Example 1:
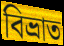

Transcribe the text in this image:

বিভ্ৰাত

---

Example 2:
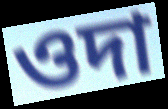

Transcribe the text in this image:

ওদা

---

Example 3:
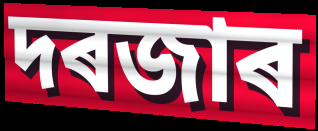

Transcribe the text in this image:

দৰজাৰ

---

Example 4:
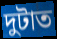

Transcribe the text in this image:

দুটাত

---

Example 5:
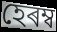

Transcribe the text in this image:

হেৰম্ব